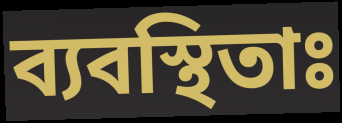
ব্যবস্থিতাঃ